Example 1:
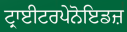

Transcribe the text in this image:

ਟ੍ਰਾਈਟਰਪੇਨੋਇਡਜ਼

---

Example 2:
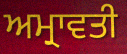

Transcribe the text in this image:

ਅਮ੍ਰਾਵਤੀ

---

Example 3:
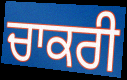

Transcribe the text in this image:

ਚਾਕਰੀ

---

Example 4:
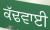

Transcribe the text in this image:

ਕੱਢਵਾਈ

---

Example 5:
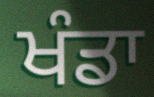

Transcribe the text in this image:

ਖੰਡਾ